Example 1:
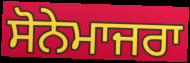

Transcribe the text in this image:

ਸੋਨੇਮਾਜਰਾ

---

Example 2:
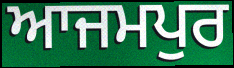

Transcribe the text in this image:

ਆਜਮਪੁਰ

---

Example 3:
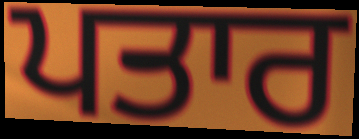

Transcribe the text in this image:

ਪਤਾਰ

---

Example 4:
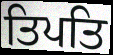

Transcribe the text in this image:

ਤਿਪਤਿ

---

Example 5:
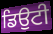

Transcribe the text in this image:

ਡਿਉਟੀ